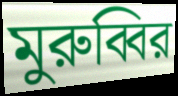
মুরুব্বির